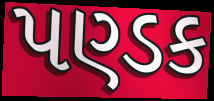
પણ્ડક